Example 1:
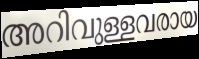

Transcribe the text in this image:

അറിവുള്ളവരായ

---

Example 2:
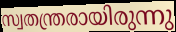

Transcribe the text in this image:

സ്വതന്ത്രരായിരുന്നു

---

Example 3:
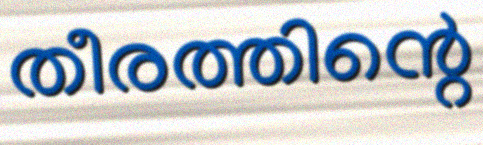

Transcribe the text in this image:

തീരത്തിന്റെ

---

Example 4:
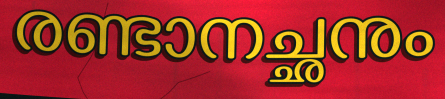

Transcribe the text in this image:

രണ്ടാനച്ഛനും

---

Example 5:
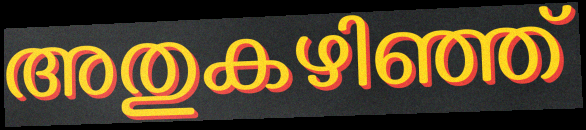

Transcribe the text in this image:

അതുകഴിഞ്ഞ്